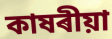
কাষৰীয়া